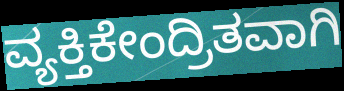
ವ್ಯಕ್ತಿಕೇಂದ್ರಿತವಾಗಿ